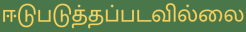
ஈடுபடுத்தப்படவில்லை